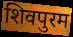
शिवपुरम